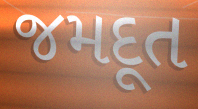
જમદૂત